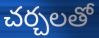
చర్చలతో